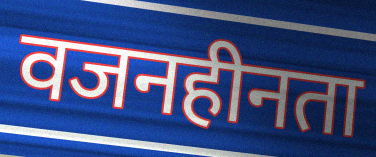
वजनहीनता